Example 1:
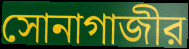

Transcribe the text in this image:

সোনাগাজীর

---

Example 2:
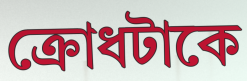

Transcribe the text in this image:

ক্রোধটাকে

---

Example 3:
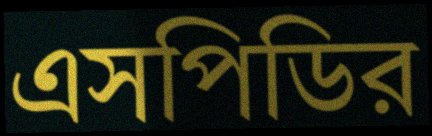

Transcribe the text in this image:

এসপিডির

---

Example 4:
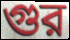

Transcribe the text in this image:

গুর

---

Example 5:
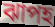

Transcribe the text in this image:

ঝাপহ